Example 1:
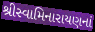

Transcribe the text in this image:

શ્રીસ્વામિનારાયણનાં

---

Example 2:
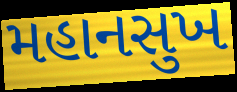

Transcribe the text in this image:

મહાનસુખ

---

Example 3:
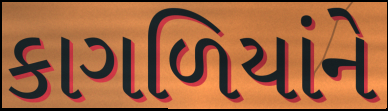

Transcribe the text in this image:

કાગળિયાંને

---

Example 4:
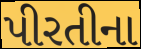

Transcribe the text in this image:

પીરતીના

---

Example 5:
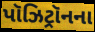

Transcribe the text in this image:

પૉઝિટ્રૉનના